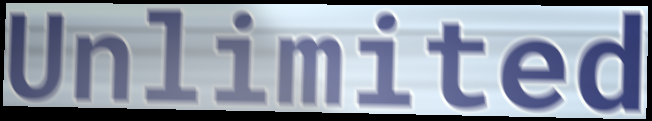
Unlimited